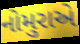
નોમુરાએ